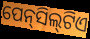
ପେନ୍‍ସିଲ୍‍ଟିଏ